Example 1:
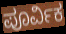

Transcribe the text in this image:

ಪೂರ್ವಿಕ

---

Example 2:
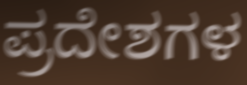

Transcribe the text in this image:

ಪ್ರದೇಶಗಳ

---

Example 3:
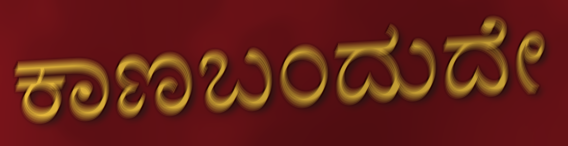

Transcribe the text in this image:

ಕಾಣಬಂದುದೇ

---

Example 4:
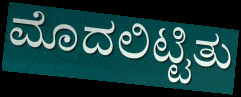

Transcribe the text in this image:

ಮೊದಲಿಟ್ಟಿತು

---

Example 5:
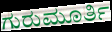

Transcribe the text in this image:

ಗುರುಮೂರ್ತಿ